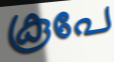
കൂപേ